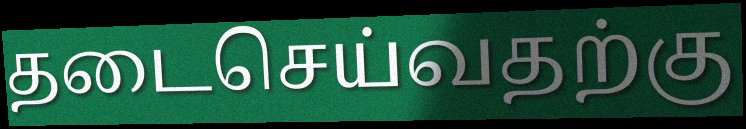
தடைசெய்வதற்கு